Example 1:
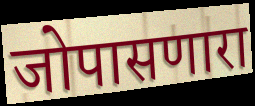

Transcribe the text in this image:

जोपासणारा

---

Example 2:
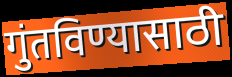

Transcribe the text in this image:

गुंतविण्यासाठी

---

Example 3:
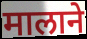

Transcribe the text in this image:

मालाने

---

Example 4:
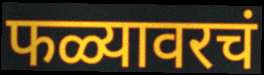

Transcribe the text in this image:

फळ्यावरचं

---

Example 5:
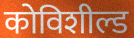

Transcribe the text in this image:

कोविशील्ड